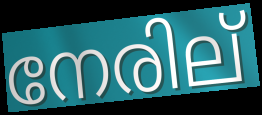
നേരില്